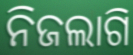
ନିଜଲାଗି